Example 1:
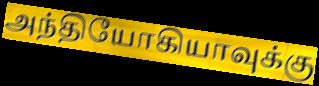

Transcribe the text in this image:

அந்தியோகியாவுக்கு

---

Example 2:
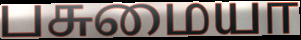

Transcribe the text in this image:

பசுமையா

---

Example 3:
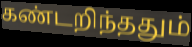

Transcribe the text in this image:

கண்டறிந்ததும்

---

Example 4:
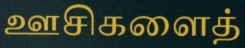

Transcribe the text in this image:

ஊசிகளைத்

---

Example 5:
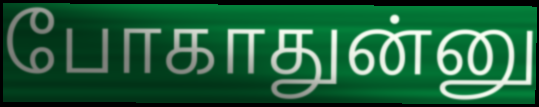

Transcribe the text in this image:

போகாதுன்னு